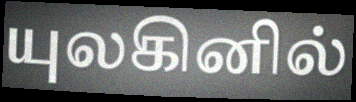
யுலகினில்